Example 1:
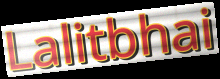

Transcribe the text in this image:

Lalitbhai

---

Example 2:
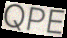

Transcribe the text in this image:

QPE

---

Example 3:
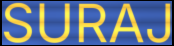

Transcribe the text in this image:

SURAJ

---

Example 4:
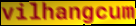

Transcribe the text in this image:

vilhangcum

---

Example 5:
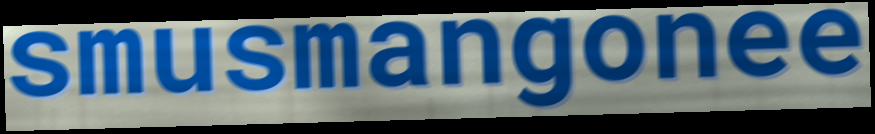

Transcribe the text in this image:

smusmangonee